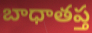
బాధాతప్త